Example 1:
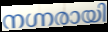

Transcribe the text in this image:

നഗ്നരായി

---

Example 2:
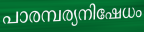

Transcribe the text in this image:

പാരമ്പര്യനിഷേധം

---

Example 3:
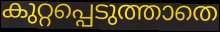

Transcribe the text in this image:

കുറ്റപ്പെടുത്താതെ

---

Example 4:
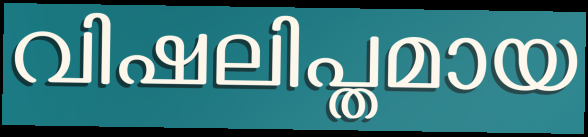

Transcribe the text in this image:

വിഷലിപ്തമായ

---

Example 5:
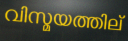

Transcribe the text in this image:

വിസ്മയത്തില്